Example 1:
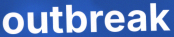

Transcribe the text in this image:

outbreak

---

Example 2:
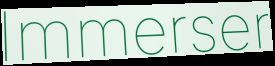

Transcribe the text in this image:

Immerser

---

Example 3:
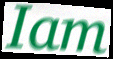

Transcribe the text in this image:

Iam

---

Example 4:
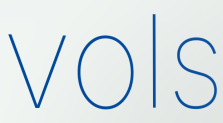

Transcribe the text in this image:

vols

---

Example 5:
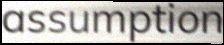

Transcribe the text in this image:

assumption